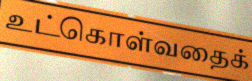
உட்கொள்வதைக்